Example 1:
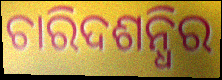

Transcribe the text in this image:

ଚାରିଦଶନ୍ଧିର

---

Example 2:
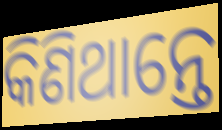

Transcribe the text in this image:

କିଣିଥାନ୍ତେ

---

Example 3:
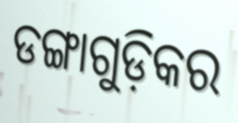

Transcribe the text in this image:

ଡଙ୍ଗାଗୁଡ଼ିକର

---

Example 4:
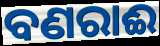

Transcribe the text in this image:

ବଣରାଈ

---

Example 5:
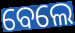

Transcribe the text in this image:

ବେଲେ